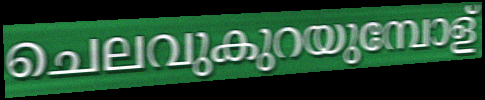
ചെലവുകുറയുമ്പോള്